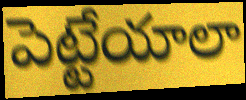
పెట్టేయాలా